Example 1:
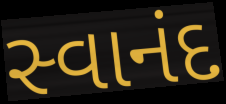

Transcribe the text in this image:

સ્વાનંદ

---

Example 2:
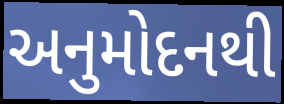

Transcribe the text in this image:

અનુમોદનથી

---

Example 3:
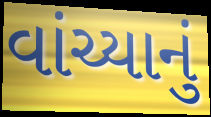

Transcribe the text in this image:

વાંચ્યાનું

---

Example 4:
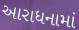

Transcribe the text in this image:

આરાધનામાં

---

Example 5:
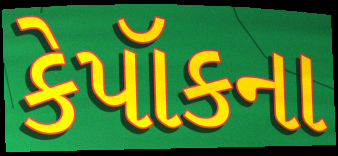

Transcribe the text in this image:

કેપૉકના